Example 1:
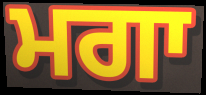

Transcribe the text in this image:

ਮਗਾ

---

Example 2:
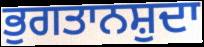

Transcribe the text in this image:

ਭੁਗਤਾਨਸ਼ੁਦਾ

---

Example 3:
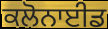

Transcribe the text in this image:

ਕਲੋਨਾਈਡ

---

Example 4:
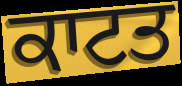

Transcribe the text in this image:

ਕਾਟਤ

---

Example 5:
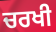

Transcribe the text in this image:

ਚਰਖੀ